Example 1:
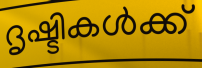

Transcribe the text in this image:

ദൃഷ്ടികൾക്ക്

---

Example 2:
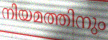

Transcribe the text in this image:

നിയമത്തിനും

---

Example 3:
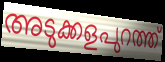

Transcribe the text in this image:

അടുക്കളപുറത്ത്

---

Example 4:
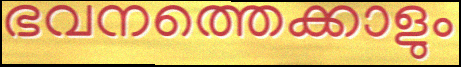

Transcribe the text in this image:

ഭവനത്തെക്കാളും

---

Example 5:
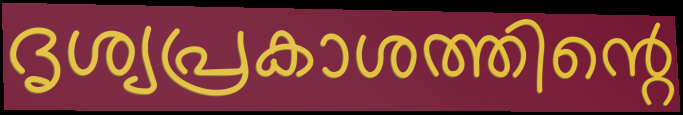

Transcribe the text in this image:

ദൃശ്യപ്രകാശത്തിന്റെ